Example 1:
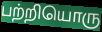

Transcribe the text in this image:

பற்றியொரு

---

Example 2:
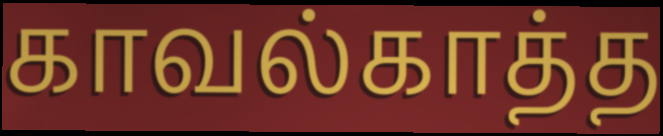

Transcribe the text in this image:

காவல்காத்த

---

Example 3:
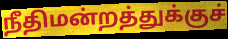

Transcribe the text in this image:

நீதிமன்றத்துக்குச்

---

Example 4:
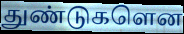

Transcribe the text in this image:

துண்டுகளென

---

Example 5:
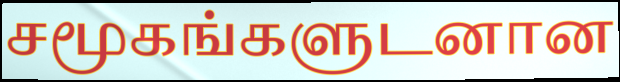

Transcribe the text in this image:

சமூகங்களுடனான